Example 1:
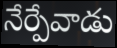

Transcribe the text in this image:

నేర్పేవాడు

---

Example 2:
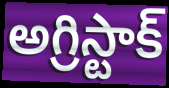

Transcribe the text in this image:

అగ్రిస్టాక్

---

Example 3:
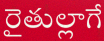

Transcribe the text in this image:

రైతుల్లాగే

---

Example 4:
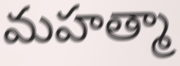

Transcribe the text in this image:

మహత్మా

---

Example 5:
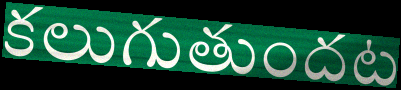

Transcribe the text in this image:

కలుగుతుందట